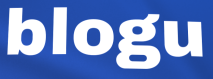
blogu